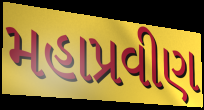
મહાપ્રવીણ